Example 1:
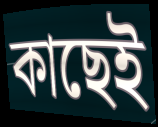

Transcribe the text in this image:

কাছেই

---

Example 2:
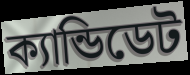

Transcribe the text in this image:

ক্যান্ডিডেট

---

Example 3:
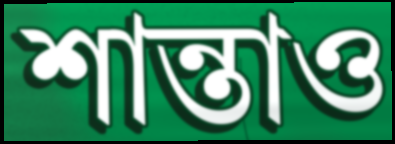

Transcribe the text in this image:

শান্তাও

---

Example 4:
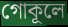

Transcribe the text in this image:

গোকূলে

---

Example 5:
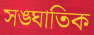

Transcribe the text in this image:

সঙ্ঘাতিক